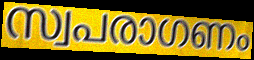
സ്വപരാഗണം